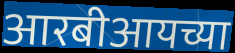
आरबीआयच्या